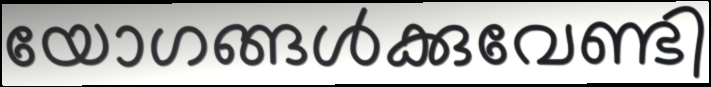
യോഗങ്ങൾക്കുവേണ്ടി